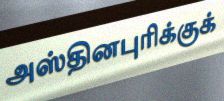
அஸ்தினபுரிக்குக்